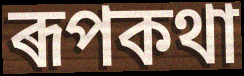
ৰূপকথা